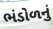
ભંડોળનું